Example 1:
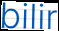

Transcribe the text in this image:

bilir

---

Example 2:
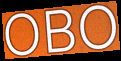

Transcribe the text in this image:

OBO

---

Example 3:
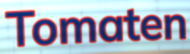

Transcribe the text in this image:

Tomaten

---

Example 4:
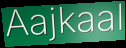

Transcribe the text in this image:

Aajkaal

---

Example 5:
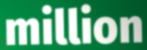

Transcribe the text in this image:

million